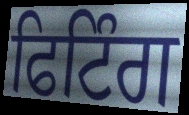
ਫਿਟਿੰਗ